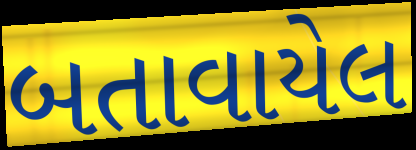
બતાવાયેલ